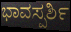
ಭಾವಸ್ಪರ್ಶಿ